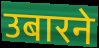
उबारने